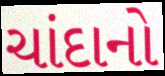
ચાંદાનો